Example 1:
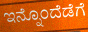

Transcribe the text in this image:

ಇನ್ನೊಂದೆಡೆಗೆ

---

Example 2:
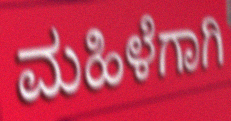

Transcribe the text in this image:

ಮಹಿಳೆಗಾಗಿ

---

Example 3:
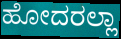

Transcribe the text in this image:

ಹೋದರಲ್ಲಾ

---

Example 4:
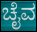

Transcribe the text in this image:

ಚೈವ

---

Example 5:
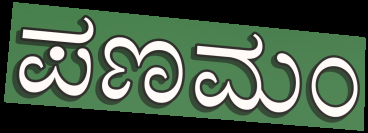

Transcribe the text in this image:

ಪಣಮಂ